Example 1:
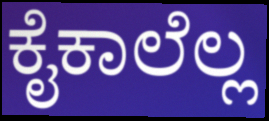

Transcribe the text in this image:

ಕೈಕಾಲೆಲ್ಲ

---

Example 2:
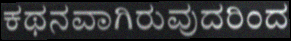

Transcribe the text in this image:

ಕಥನವಾಗಿರುವುದರಿಂದ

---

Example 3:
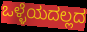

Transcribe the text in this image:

ಒಳ್ಳೆಯದಲ್ಲದ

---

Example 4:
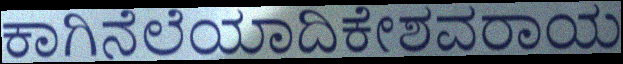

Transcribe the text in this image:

ಕಾಗಿನೆಲೆಯಾದಿಕೇಶವರಾಯ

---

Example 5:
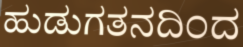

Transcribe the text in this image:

ಹುಡುಗತನದಿಂದ